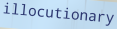
illocutionary